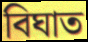
বিঘাত